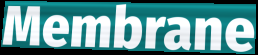
Membrane